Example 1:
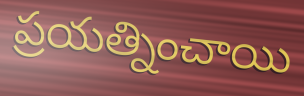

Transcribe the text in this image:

ప్రయత్నించాయి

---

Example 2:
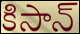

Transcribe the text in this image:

కిసాన్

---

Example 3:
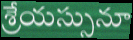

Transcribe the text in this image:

శ్రేయస్సునూ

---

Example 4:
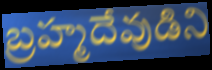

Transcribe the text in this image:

బ్రహ్మదేవుడిని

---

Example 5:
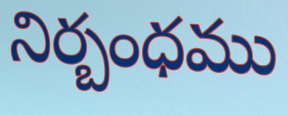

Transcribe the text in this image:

నిర్బంధము